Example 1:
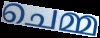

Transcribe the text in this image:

ചെമ്മ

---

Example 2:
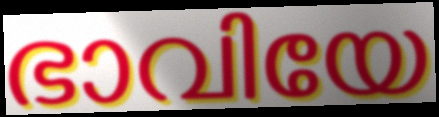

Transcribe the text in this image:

ഭാവിയേ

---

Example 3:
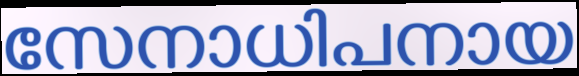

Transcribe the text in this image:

സേനാധിപനായ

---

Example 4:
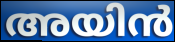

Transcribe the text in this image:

അയിൻ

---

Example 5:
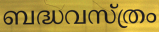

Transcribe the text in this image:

ബദ്ധവസ്ത്രം